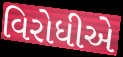
વિરોધીએ